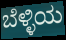
ಬೆಳ್ಳಿಯ